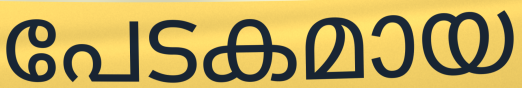
പേടകമായ